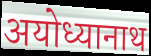
अयोध्यानाथ